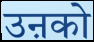
उऩको